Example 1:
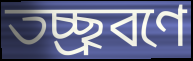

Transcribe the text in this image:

তচ্ছ্রবণে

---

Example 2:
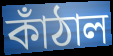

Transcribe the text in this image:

কাঁঠাল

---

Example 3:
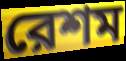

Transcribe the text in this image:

রেশম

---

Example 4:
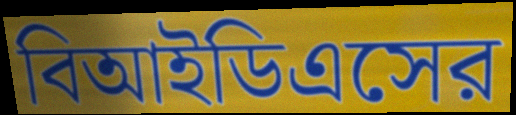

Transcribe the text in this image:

বিআইডিএসের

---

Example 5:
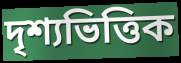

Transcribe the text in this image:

দৃশ্যভিত্তিক